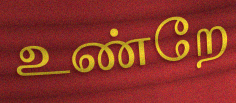
உண்றே